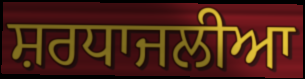
ਸ਼ਰਧਾਜਲੀਆ